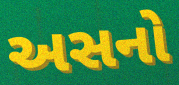
અસનો